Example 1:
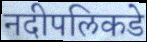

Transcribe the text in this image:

नदीपलिकडे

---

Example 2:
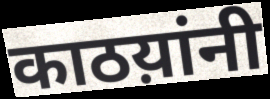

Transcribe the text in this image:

काठय़ांनी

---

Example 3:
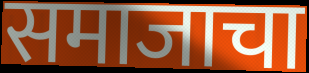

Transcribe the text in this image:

समाजाचा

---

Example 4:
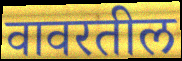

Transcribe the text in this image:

वावरतील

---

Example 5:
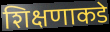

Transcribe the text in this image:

शिक्षणाकडे